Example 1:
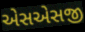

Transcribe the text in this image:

એસએસજી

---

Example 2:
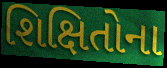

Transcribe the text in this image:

શિક્ષિતોના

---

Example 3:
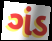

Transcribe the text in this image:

ગંડ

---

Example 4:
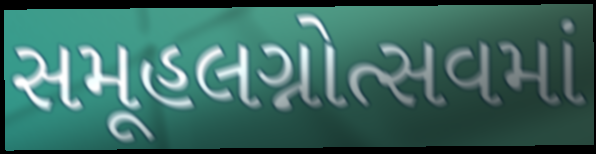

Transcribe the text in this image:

સમૂહલગ્નોત્સવમાં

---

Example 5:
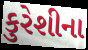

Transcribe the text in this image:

કુરેશીના